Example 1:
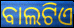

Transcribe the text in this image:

ବାଲଟିଏ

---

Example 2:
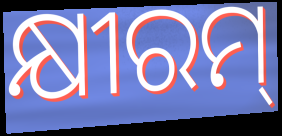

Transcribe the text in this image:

କ୍ଷୀରମ୍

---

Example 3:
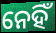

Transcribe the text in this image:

ନେହିଁ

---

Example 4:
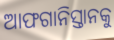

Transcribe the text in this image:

ଆଫଗାନିସ୍ତାନକୁ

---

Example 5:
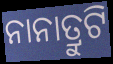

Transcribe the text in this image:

ନାନାତ୍ରୁଟି